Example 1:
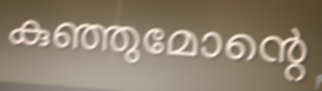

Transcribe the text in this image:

കുഞ്ഞുമോന്റെ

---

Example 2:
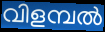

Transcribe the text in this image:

വിളമ്പൽ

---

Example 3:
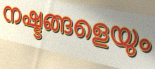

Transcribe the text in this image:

നഷ്ടങ്ങളെയും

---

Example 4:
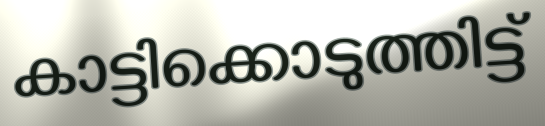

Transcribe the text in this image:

കാട്ടിക്കൊടുത്തിട്ട്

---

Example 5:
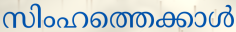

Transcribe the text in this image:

സിംഹത്തെക്കാൾ